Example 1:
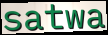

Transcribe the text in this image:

satwa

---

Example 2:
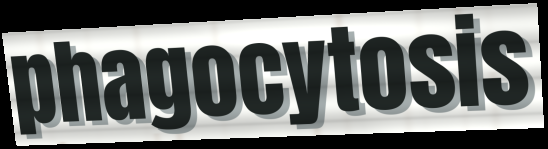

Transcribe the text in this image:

phagocytosis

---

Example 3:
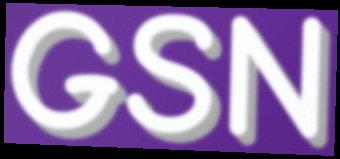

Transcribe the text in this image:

GSN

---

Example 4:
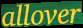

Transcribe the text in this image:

allover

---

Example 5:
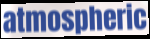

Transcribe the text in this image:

atmospheric